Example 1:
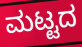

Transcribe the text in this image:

ಮಟ್ಟದ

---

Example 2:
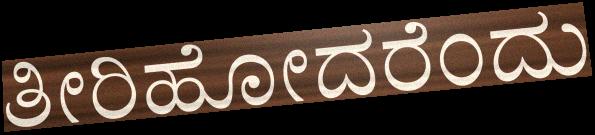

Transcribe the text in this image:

ತೀರಿಹೋದರೆಂದು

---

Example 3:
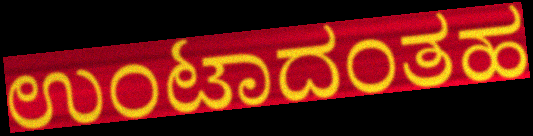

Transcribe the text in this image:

ಉಂಟಾದಂತಹ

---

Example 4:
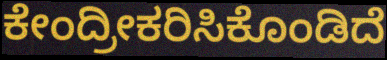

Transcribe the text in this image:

ಕೇಂದ್ರೀಕರಿಸಿಕೊಂಡಿದೆ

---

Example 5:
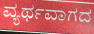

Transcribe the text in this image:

ವ್ಯರ್ಥವಾಗದ